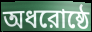
অধরোষ্ঠে